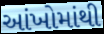
આંખોમાંથી